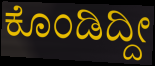
ಕೊಂಡಿದ್ದೀ